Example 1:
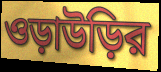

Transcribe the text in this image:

ওড়াউড়ির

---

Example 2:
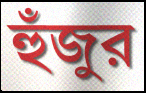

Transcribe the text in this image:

হুঁজুর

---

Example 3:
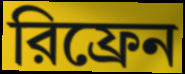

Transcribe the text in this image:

রিফ্রেন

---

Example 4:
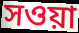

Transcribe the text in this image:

সওয়া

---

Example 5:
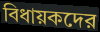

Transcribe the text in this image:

বিধায়কদের